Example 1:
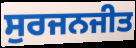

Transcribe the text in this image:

ਸੁਰਜਨਜੀਤ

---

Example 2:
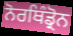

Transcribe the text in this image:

ਨੋਰਥਿੰਡ੍ਰੋਨ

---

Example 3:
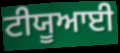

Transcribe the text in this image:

ਟੀਯੂਆਈ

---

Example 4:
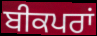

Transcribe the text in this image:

ਬੀਕਪਰਾਂ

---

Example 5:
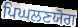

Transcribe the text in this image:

ਪਿਘਲਣਯੋਗ